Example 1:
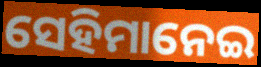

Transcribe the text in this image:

ସେହିମାନେଇ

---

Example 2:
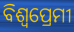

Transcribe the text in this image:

ବିଶ୍ଵପ୍ରେମୀ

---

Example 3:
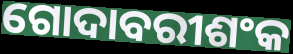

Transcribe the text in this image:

ଗୋଦାବରୀଶଂକ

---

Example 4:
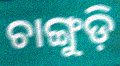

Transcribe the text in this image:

ଚାଙ୍ଗୁଡ଼ି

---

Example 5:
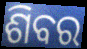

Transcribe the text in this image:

ଶିବର